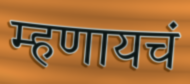
म्हणायचं